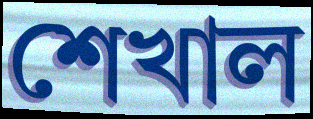
শেখাল